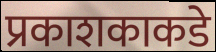
प्रकाशकाकडे